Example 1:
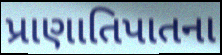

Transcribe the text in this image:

પ્રાણાતિપાતના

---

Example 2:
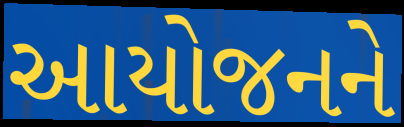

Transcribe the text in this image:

આયોજનને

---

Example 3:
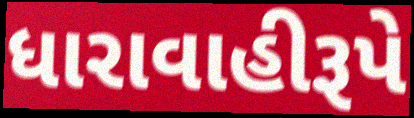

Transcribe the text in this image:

ધારાવાહીરૂપે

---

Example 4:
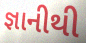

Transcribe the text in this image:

જ્ઞાનીથી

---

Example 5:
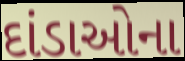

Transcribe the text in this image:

દાંડાઓના